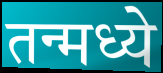
तन्मध्ये